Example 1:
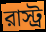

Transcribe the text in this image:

রাস্ট্র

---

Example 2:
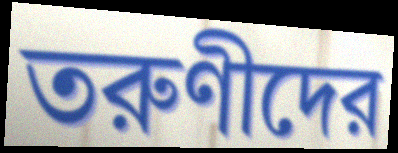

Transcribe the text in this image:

তরুণীদের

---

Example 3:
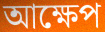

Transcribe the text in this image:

আক্ষেপ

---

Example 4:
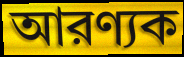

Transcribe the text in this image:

আরণ্যক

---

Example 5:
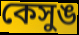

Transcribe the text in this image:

কেসুঙ